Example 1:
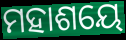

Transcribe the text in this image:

ମହାଶୟେ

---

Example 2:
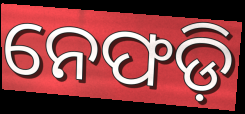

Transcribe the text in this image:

ନେଫଡ଼ି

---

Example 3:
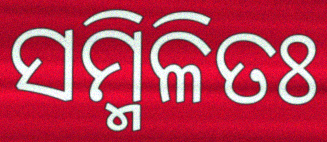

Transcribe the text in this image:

ସମ୍ମିଳିତଃ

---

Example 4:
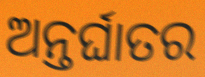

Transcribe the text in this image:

ଅନ୍ତର୍ଘାତର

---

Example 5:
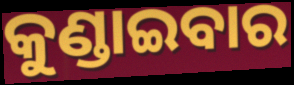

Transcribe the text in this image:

କୁଣ୍ଡାଇବାର